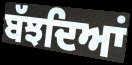
ਬੱਝਦਿਆਂ